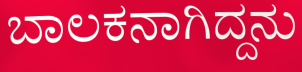
ಬಾಲಕನಾಗಿದ್ದನು